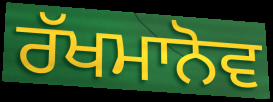
ਰੱਖਮਾਨੋਵ